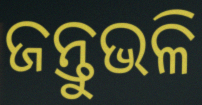
ଜନ୍ତୁଭଳି